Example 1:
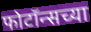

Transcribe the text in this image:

फोटॉन्सच्या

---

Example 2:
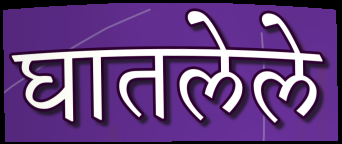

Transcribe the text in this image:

घातलेले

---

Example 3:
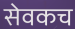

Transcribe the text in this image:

सेवकच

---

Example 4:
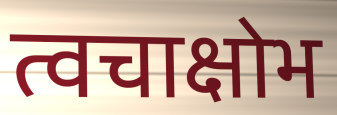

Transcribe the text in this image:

त्वचाक्षोभ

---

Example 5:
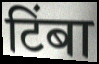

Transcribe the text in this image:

टिंबा